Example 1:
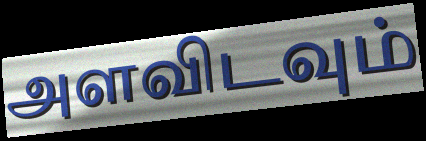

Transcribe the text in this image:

அளவிடவும்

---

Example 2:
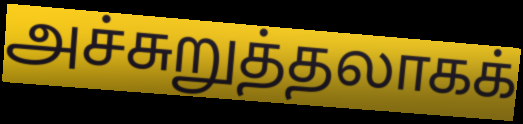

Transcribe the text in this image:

அச்சுறுத்தலாகக்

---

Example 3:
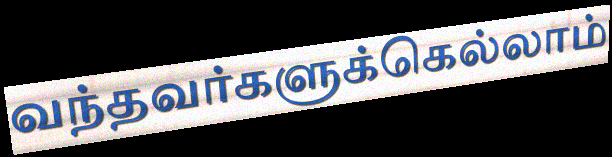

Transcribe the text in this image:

வந்தவர்களுக்கெல்லாம்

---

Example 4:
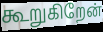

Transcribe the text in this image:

கூறுகிறேன்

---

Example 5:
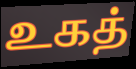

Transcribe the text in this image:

உகத்